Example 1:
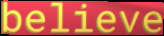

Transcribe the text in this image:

believe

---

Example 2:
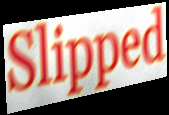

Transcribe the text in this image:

Slipped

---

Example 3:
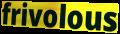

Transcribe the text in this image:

frivolous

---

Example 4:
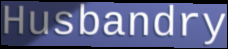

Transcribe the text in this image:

Husbandry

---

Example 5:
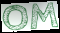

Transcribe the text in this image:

OM